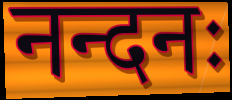
नन्दनः